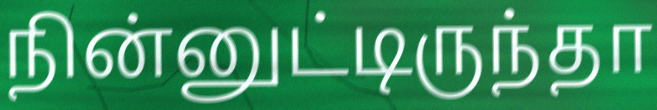
நின்னுட்டிருந்தா